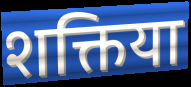
शक्तिया